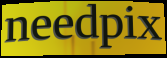
needpix